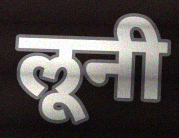
लूनी